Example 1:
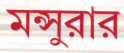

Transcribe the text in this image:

মন্সুরার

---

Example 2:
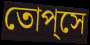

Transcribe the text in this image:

তোপ্‌সে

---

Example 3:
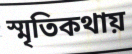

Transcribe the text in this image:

স্মৃতিকথায়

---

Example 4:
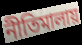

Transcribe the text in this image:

নীতিমালায়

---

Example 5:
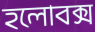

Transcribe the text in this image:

হলোবক্স